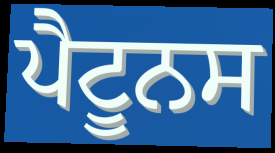
ਪੈਟੂਨਸ